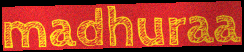
madhuraa